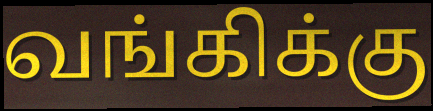
வங்கிக்கு